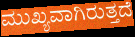
ಮುಖ್ಯವಾಗಿರುತ್ತದೆ